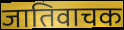
जातिवाचक